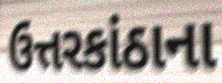
ઉત્તરકાંઠાના